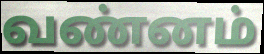
வண்னம்